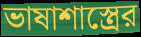
ভাষাশাস্ত্রের